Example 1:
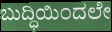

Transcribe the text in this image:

ಬುದ್ಧಿಯಿಂದಲೇ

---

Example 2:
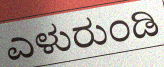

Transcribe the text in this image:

ಎಳುರುಂಡಿ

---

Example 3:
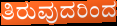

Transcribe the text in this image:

ತಿರುವುದರಿಂದ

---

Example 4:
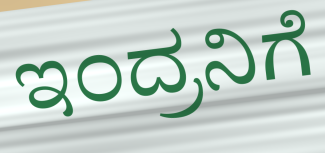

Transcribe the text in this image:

ಇಂದ್ರನಿಗೆ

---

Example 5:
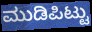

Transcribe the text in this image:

ಮುಡಿಪಿಟ್ಟು